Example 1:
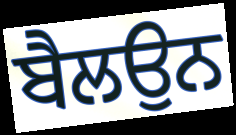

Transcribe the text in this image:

ਬੈਲਉਨ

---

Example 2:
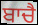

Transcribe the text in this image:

ਬਾਚੈ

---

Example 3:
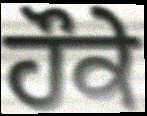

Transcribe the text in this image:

ਹੌਕੇ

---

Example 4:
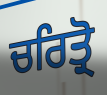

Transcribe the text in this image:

ਚਰਿਤ੍ਰੋ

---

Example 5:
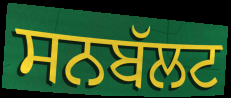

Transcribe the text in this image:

ਸਨਬੱਲਟ